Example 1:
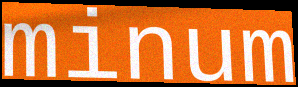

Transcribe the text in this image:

minum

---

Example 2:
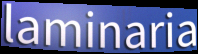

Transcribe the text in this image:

laminaria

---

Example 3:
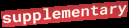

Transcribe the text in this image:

supplementary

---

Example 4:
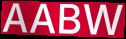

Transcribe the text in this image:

AABW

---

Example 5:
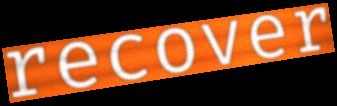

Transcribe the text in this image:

recover